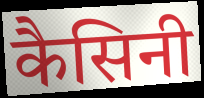
कैसिनी